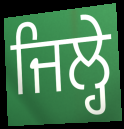
ਜਿਲ੍ਹੇ